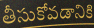
తీసుకోవడానికి